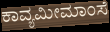
ಕಾವ್ಯಮೀಮಾಂಸೆ